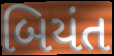
બિયંત